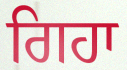
ਗਿਹਾ